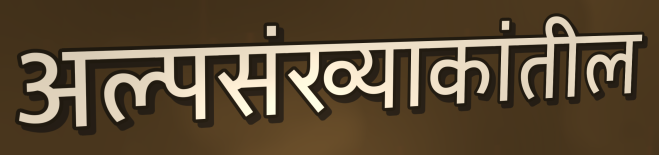
अल्पसंख्याकांतील